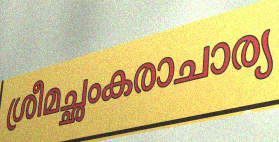
ശ്രീമച്ഛംകരാചാര്യ